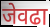
जेवढा